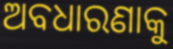
ଅବଧାରଣାକୁ